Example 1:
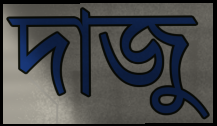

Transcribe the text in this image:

দাজু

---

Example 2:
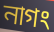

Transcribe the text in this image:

নাগং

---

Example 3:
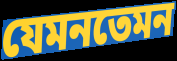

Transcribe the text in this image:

যেমনতেমন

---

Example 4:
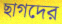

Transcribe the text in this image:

ছাগদের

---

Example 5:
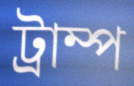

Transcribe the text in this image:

ট্রাম্প